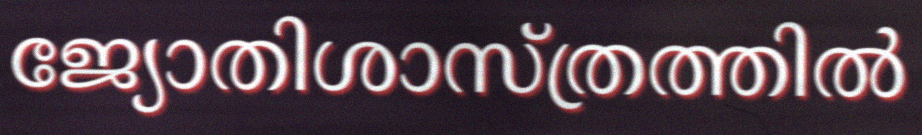
ജ്യോതിശാസ്ത്രത്തിൽ